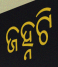
ଜହ୍ନଟି